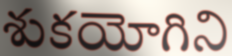
శుకయోగిని